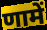
णामें